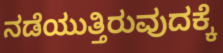
ನಡೆಯುತ್ತಿರುವುದಕ್ಕೆ